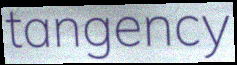
tangency